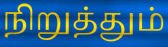
நிறுத்தும்